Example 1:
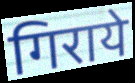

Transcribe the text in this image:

गिराये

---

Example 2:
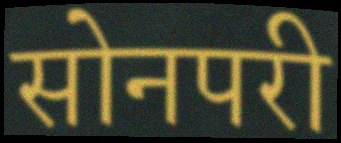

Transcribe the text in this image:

सोनपरी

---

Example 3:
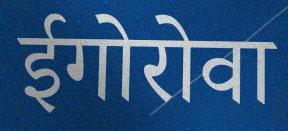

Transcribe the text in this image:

ईगोरोवा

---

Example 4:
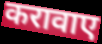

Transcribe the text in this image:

करावाए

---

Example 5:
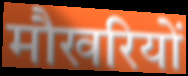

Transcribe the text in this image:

मौखरियों